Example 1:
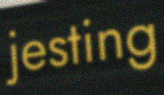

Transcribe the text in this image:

jesting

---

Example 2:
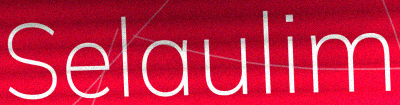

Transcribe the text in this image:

Selaulim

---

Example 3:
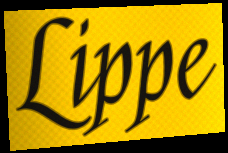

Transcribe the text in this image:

Lippe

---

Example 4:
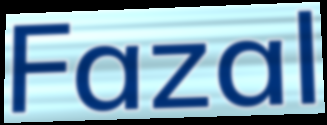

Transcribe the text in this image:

Fazal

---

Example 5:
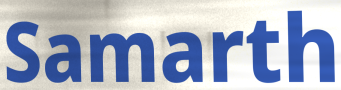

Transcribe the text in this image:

Samarth